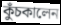
কুঁচকালেন